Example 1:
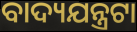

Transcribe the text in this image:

ବାଦ୍ୟଯନ୍ତ୍ରଟା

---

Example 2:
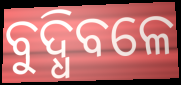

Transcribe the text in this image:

ବୁଦ୍ଧିବଳେ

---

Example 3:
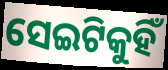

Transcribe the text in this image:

ସେଇଟିକୁହିଁ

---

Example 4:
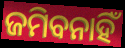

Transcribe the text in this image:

ଜମିବନାହିଁ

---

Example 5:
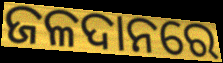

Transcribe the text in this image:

ଜଳଦାନରେ